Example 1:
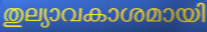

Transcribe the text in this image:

തുല്യാവകാശമായി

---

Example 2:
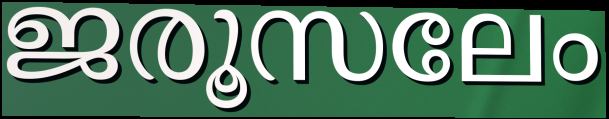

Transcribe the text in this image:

ജരൂസലേം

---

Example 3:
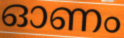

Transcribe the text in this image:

ഓണം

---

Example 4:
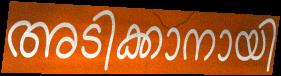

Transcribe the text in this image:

അടിക്കാനായി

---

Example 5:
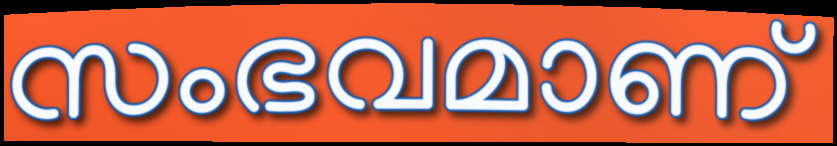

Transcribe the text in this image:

സംഭവമാണ്